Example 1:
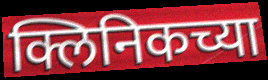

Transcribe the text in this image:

क्लिनिकच्या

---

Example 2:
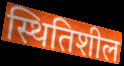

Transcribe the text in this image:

स्थितिशील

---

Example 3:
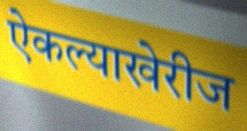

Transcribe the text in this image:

ऐकल्याखेरीज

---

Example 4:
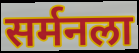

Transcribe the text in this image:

सर्मनला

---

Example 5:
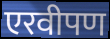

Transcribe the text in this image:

एरवीपण